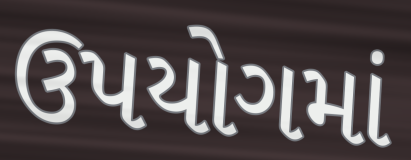
ઉપયોગમાં